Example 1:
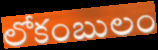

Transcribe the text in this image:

లోకంబులం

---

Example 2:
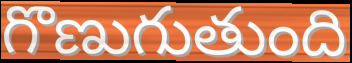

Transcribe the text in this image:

గొణుగుతుంది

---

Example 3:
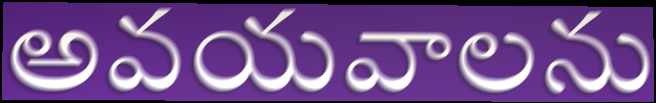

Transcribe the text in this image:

అవయవాలను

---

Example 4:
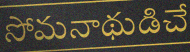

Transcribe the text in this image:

సోమనాథుడిచే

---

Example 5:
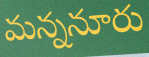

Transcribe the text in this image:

మన్ననూరు